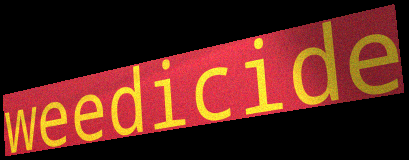
weedicide